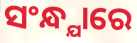
ସଂନ୍ଧ୍ଯାରେ